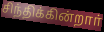
சிந்திக்கின்றார்